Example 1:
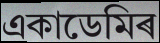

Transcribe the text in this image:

একাডেমিৰ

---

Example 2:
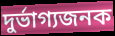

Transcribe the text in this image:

দুৰ্ভাগ্যজনক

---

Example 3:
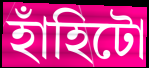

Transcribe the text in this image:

হাঁহিটো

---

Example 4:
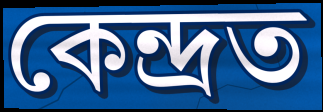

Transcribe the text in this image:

কেন্দ্ৰত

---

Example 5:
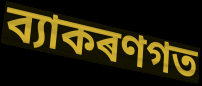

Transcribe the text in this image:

ব্যাকৰণগত